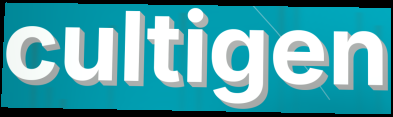
cultigen